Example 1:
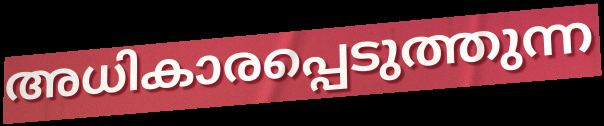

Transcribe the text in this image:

അധികാരപ്പെടുത്തുന്ന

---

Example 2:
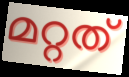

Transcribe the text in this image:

മറ്റത്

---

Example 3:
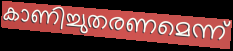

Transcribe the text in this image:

കാണിച്ചുതരണമെന്ന്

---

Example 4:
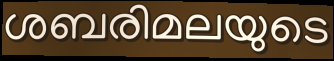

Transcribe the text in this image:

ശബരിമലയുടെ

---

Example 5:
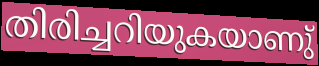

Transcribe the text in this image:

തിരിച്ചറിയുകയാണു്